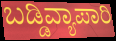
ಬಡ್ಡಿವ್ಯಾಪಾರಿ